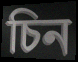
চিন